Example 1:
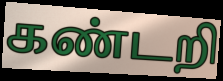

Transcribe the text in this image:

கண்டறி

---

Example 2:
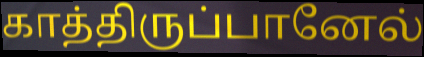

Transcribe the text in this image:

காத்திருப்பானேல்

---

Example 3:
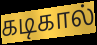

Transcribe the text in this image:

கடிகால்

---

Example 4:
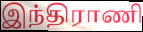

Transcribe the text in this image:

இந்திராணி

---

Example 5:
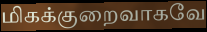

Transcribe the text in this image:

மிகக்குறைவாகவே